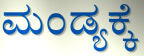
ಮಂಡ್ಯಕ್ಕೆ